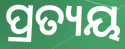
ପ୍ରତ୍ୟୟ